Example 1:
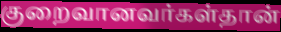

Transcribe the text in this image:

குறைவானவர்கள்தான்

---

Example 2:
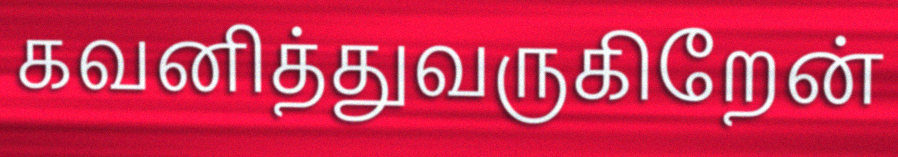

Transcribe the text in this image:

கவனித்துவருகிறேன்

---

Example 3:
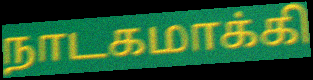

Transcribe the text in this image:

நாடகமாக்கி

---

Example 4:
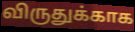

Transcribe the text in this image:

விருதுக்காக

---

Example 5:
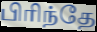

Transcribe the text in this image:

பிரிந்தே